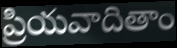
ప్రియవాదితాం